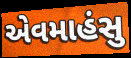
એવમાહંસુ